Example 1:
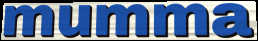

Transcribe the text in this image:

mumma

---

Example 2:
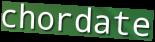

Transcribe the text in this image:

chordate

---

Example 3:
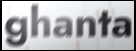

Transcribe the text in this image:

ghanta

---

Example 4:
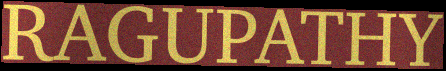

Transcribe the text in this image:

RAGUPATHY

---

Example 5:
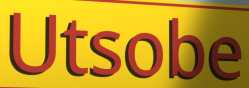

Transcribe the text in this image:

Utsobe